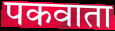
पकवाता